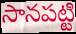
సానపట్టి